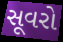
સૂવરો